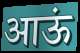
आऊं